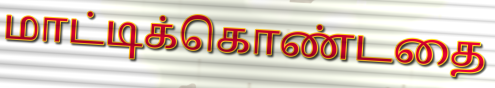
மாட்டிக்கொண்டதை